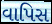
વાપિસ